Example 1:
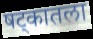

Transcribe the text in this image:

षट्कातला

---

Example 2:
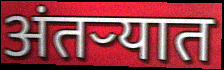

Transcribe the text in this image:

अंतऱ्यात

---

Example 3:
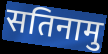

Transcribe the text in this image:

सतिनामु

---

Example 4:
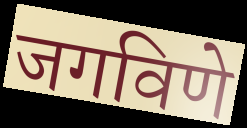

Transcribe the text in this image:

जगविणे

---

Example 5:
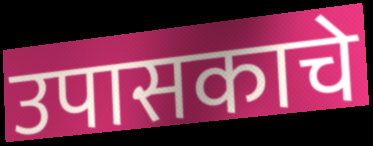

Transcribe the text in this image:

उपासकाचे